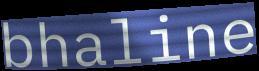
bhaline